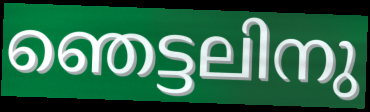
ഞെട്ടലിനു